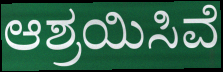
ಆಶ್ರಯಿಸಿವೆ